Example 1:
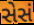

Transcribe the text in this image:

સેસં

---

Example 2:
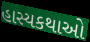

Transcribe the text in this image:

હાસ્યકથાઓ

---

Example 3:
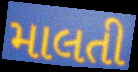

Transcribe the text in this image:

માલતી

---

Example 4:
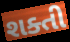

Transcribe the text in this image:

શક્તી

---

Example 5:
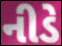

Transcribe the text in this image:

નીડે